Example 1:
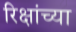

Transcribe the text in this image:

रिक्षांच्या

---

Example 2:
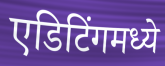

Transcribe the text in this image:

एडिटिंगमध्ये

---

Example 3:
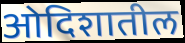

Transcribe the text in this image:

ओदिशातील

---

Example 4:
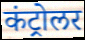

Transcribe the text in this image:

कंट्रोलर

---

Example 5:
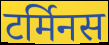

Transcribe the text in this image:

टर्मिनस